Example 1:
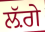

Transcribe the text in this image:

ਲ਼ੱਗੇ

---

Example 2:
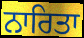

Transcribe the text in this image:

ਨਾਰਿਤਾ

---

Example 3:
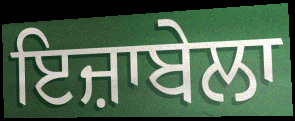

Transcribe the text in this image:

ਇਜ਼ਾਬੇਲਾ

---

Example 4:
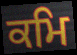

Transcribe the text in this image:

ਕਮਿ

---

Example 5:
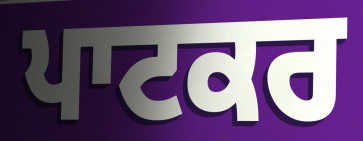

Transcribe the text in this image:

ਪਾਟਕਰ